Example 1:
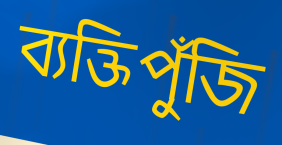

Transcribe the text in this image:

ব্যক্তিপুঁজি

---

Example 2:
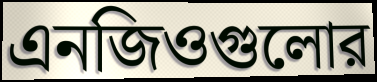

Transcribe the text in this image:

এনজিওগুলোর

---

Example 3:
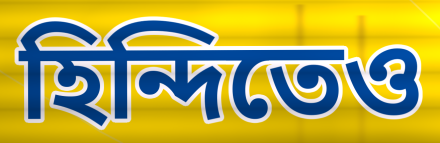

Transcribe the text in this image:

হিন্দিতেও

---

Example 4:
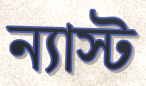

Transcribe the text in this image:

ন্যাস্ট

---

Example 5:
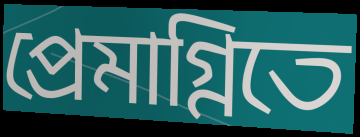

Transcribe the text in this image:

প্রেমাগ্নিতে